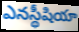
ఎనస్థీషియా